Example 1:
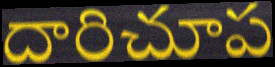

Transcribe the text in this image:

దారిచూప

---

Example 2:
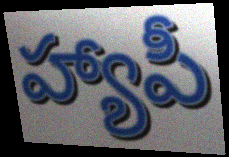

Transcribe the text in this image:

హ్యాపీ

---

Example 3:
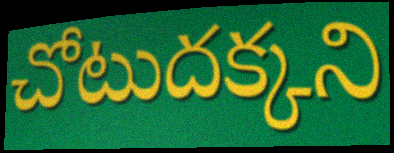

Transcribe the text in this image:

చోటుదక్కని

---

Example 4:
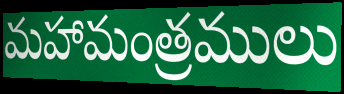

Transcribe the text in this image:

మహామంత్రములు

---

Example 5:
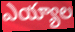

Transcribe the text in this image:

ఎయ్యాల